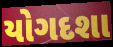
યોગદશા